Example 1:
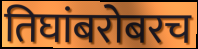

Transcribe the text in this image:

तिघांबरोबरच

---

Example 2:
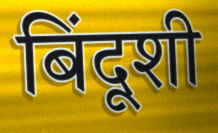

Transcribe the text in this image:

बिंदूशी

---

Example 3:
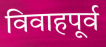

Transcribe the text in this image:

विवाहपूर्व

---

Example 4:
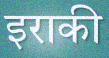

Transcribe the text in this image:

इराकी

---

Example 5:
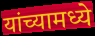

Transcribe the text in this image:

यांच्यामध्ये